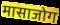
मासाजोग